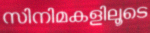
സിനിമകളിലൂടെ